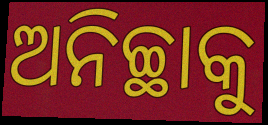
ଅନିଚ୍ଛାକୁ